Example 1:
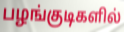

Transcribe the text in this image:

பழங்குடிகளில்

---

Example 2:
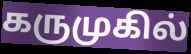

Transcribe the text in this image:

கருமுகில்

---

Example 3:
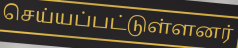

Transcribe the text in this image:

செய்யப்பட்டுள்ளனர்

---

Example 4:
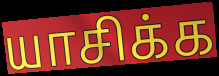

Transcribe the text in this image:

யாசிக்க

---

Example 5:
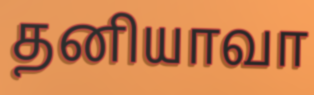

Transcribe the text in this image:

தனியாவா